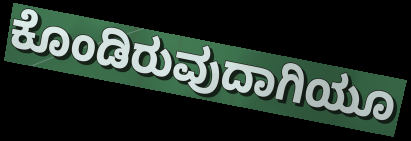
ಕೊಂಡಿರುವುದಾಗಿಯೂ